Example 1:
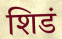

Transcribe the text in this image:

शिडं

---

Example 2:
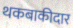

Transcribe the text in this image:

थकबाकीदार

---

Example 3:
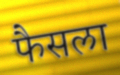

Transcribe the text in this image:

फैसला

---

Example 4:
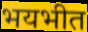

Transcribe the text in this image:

भयभीत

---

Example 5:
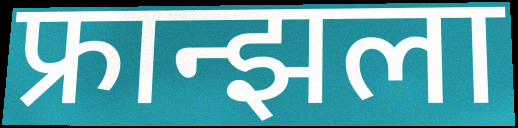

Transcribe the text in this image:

फ्रान्झला